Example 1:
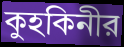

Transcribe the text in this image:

কুহকিনীর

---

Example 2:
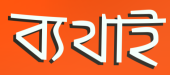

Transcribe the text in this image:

ব্যথাই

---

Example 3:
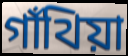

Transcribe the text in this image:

গাঁথিয়া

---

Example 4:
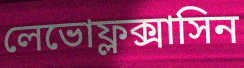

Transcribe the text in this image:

লেভোফ্লক্সাসিন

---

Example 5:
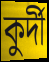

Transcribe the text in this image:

কুর্দী